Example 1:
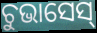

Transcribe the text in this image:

ଚୁଭାସେସ୍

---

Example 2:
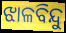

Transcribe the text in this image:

ଝାଳବିନ୍ଦୁ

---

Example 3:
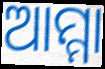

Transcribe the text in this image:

ଆମ୍ମା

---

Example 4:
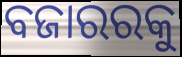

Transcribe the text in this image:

ବଜାରରକୁ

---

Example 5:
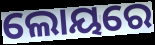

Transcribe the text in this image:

ଲୋୟରେ